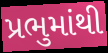
પ્રભુમાંથી